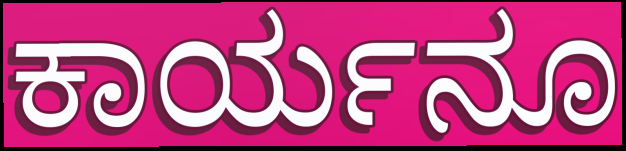
ಕಾರ್ಯನೂ